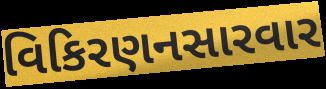
વિકિરણનસારવાર